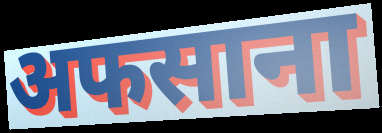
अफसाना